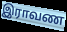
இராவண